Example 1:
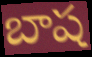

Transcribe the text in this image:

బాష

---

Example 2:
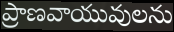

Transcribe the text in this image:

ప్రాణవాయువులను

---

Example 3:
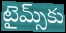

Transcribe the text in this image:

టైమ్స్‌కు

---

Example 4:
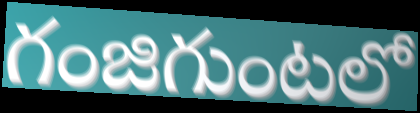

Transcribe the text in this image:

గంజిగుంటలో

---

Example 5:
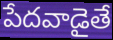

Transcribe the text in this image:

పేదవాడైతే